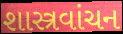
શાસ્ત્રવાંચન